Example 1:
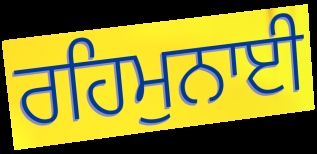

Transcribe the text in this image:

ਰਹਿਮੁਨਾਈ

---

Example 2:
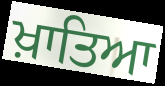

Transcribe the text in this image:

ਖ਼ਾਤਿਆ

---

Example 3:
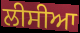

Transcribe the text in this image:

ਲੀਸੀਆ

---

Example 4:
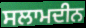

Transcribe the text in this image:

ਸਲਾਮਦੀਨ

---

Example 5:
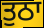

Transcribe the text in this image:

ਤੁਠਾ